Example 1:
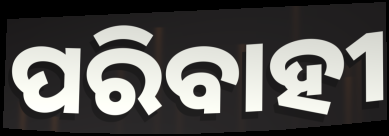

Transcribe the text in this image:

ପରିବାହୀ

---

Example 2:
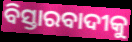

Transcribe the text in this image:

ବିସ୍ତାରବାଦୀକୁ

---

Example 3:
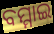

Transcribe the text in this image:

ବମ୍ମାଇ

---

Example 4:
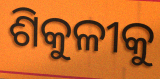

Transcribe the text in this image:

ଶିକୁଳୀକୁ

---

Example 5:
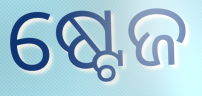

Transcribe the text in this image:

ଷ୍ଟେଜ